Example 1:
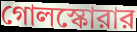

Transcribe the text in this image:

গোলস্কোরার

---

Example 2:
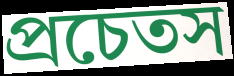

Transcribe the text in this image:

প্রচেতস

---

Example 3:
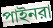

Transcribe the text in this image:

পাইনরা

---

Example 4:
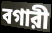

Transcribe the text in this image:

বগারী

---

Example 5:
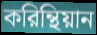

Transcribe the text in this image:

করিন্থিয়ান